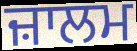
ਜ਼ਾਲਮ